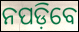
ନପଡ଼ିବେ